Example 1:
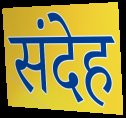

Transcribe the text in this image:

संदेह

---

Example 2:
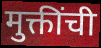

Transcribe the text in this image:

मुक्तींची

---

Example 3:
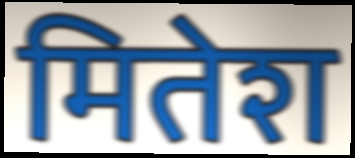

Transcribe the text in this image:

मितेश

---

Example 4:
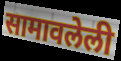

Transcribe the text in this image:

सामावलेली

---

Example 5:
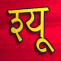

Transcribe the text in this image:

श्यू